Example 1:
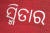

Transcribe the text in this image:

ସ୍ମିତାର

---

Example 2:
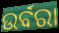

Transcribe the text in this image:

ଉର୍ବରା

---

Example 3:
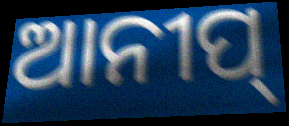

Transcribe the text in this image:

ଆନୀପ୍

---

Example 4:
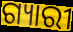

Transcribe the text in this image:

ଗ୍ୟାରୀ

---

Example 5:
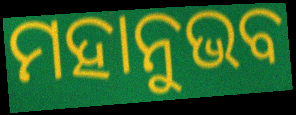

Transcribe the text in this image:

ମହାନୁଭବ